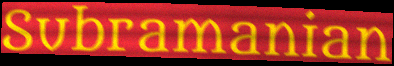
Subramanian